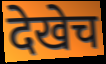
देखेच